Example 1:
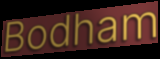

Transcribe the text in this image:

Bodham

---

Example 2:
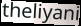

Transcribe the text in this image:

theliyani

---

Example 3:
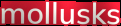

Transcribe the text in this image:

mollusks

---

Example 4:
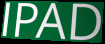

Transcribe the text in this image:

IPAD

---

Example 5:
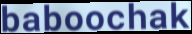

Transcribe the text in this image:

baboochak